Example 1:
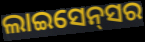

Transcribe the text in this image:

ଲାଇସେନ୍‌ସର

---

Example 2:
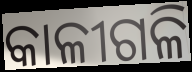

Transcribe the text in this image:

କାଳୀଗଳି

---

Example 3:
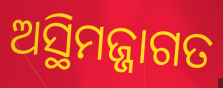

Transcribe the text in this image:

ଅସ୍ଥିମଜ୍ଜାଗତ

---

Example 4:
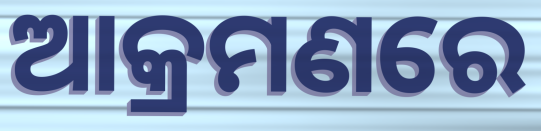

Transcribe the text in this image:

ଆକ୍ରମଣରେ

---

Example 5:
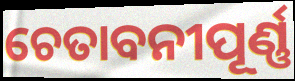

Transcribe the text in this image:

ଚେତାବନୀପୂର୍ଣ୍ଣ